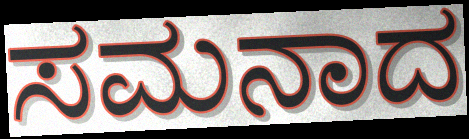
ಸಮನಾದ